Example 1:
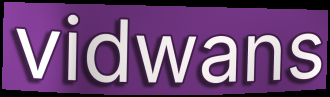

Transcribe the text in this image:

vidwans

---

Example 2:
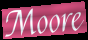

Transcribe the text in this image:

Moore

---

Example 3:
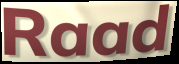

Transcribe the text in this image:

Raad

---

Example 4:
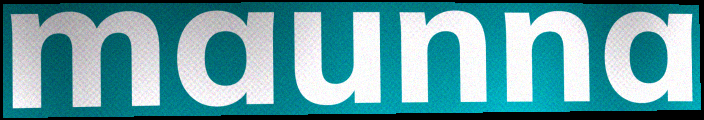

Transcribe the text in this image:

maunna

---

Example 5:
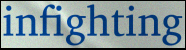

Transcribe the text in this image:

infighting